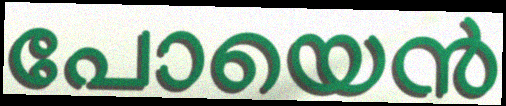
പോയെൻ